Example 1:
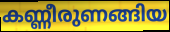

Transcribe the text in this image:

കണ്ണീരുണങ്ങിയ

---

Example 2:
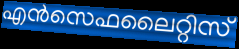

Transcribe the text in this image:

എൻസെഫലൈറ്റിസ്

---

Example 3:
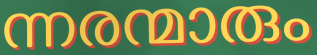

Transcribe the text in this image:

ന്നരന്മാരും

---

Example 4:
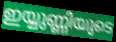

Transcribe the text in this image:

ഇയ്യുണ്ണിയുടെ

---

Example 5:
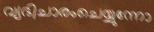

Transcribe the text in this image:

വ്യഭിചാരംചെയ്യുന്നോ